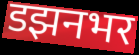
डझनभर